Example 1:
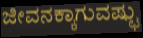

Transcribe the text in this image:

ಜೀವನಕ್ಕಾಗುವಷ್ಟು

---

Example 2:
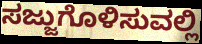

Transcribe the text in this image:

ಸಜ್ಜುಗೊಳಿಸುವಲ್ಲಿ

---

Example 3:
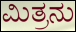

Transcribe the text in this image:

ಮಿತ್ರನು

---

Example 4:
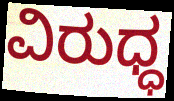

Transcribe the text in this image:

ವಿರುಧ್ಧ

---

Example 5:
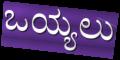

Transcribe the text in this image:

ಒಯ್ಯಲು